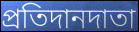
প্রতিদানদাতা